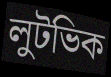
লুটভিক